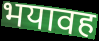
भयावह